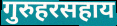
गुरुहरसहाय